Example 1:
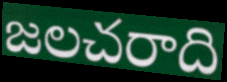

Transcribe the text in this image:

జలచరాది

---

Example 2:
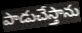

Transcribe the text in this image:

పాడుచేస్తాను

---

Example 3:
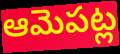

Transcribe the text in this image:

ఆమెపట్ల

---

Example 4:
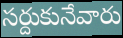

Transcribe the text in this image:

సర్దుకునేవారు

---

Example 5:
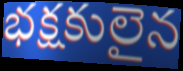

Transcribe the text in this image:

భక్షకులైన